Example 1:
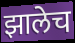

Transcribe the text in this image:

झालेच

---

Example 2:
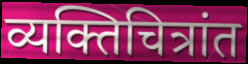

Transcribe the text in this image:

व्यक्तिचित्रांत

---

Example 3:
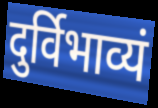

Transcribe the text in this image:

दुर्विभाव्यं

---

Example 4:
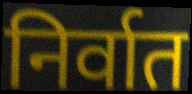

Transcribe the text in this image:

निर्वात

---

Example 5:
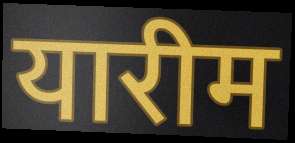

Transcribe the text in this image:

यारीम